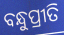
ବନ୍ଧୁପ୍ରୀତି